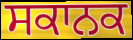
ਸਕਾਨਕ